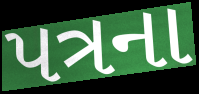
પત્રના